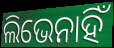
ଲିଭେନାହିଁ